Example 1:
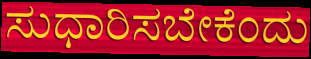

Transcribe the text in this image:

ಸುಧಾರಿಸಬೇಕೆಂದು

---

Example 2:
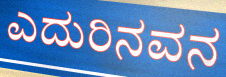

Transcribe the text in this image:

ಎದುರಿನವನ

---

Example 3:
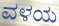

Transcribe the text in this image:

ವಳಯ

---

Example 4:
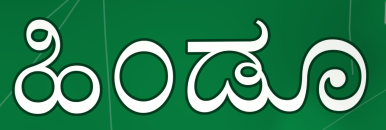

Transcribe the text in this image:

ಹಿಂಡೂ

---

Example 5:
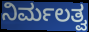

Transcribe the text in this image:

ನಿರ್ಮಲತ್ವ